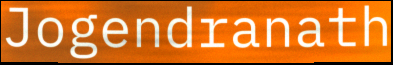
Jogendranath